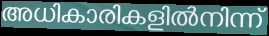
അധികാരികളിൽനിന്ന്